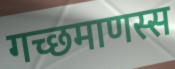
गच्छमाणस्स